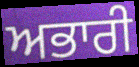
ਅਭਾਰੀ